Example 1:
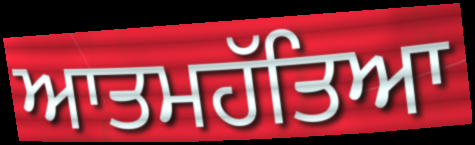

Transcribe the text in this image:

ਆਤਮਹੱਤਿਆ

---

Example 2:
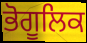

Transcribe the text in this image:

ਭੋਗੂਲਿਕ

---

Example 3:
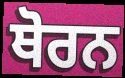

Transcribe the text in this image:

ਥੋਰਨ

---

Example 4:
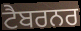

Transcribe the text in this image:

ਟੈਬਰਨਰ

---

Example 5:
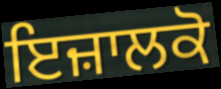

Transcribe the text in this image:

ਇਜ਼ਾਲਕੋ